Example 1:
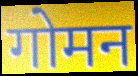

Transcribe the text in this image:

गोमन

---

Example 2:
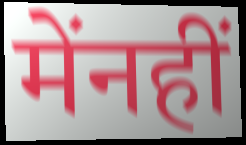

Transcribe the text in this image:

मेंनहीं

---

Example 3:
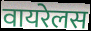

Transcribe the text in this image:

वायरेलस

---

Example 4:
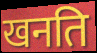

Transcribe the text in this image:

खनति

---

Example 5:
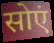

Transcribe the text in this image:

सोएं